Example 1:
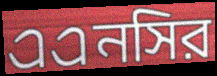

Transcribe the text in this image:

এএনসির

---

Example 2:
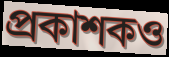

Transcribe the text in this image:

প্রকাশকও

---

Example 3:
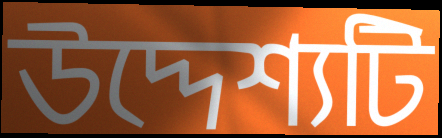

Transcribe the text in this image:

উদ্দেশ্যটি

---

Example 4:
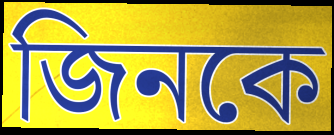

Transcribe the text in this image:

জিনকে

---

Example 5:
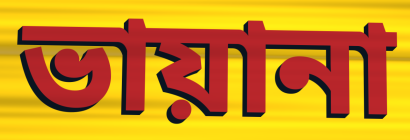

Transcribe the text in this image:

ভায়ানা